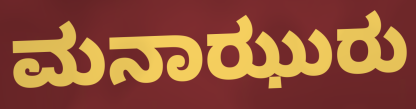
ಮನಾಝುರು